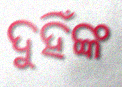
ଦୁହିଁଙ୍କ